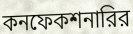
কনফেকশনারির